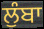
ਲੁੰਬਾ